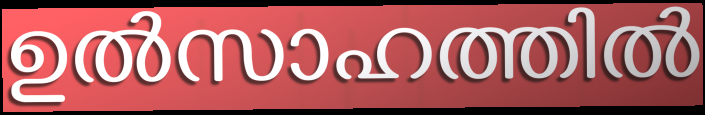
ഉൽസാഹത്തിൽ